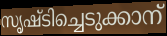
സൃഷ്ടിച്ചെടുക്കാന്